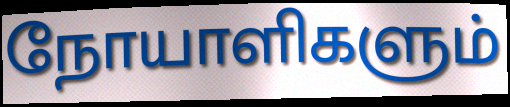
நோயாளிகளும்